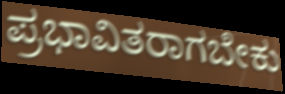
ಪ್ರಭಾವಿತರಾಗಬೇಕು